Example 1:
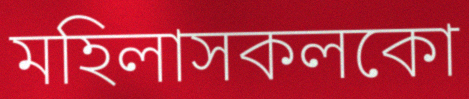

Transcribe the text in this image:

মহিলাসকলকো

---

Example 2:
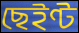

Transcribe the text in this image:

ছেইণ্ট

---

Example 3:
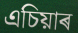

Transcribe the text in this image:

এচিয়াৰ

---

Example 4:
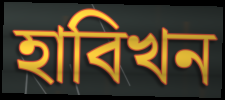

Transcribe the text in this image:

হাবিখন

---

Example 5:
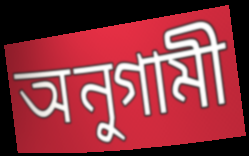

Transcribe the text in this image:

অনুগামী